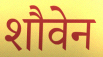
शौवेन